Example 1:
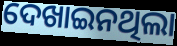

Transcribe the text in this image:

ଦେଖାଇନଥିଲା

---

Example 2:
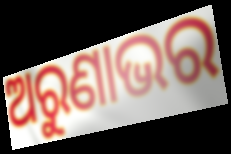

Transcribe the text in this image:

ଅରୁଣାଭର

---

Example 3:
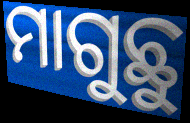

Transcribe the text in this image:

ମାଗୁଛୁ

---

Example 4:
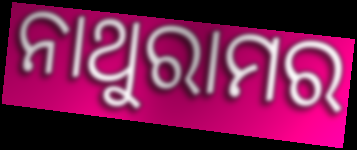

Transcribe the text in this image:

ନାଥୁରାମର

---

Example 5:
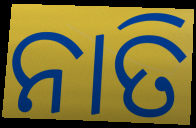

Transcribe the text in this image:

ନାତି